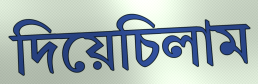
দিয়েচিলাম